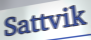
Sattvik